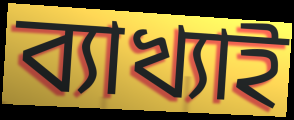
ব্যাখ্যাই